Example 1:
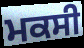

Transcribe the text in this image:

ਮਕਸੀ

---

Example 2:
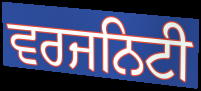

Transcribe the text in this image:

ਵਰਜਨਿਟੀ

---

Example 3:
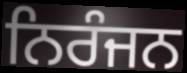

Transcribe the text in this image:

ਨਿਰੰਜਨ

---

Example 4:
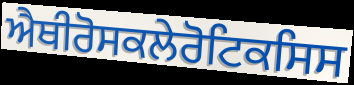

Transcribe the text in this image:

ਐਥੀਰੋਸਕਲੇਰੋਟਿਕਸਿਸ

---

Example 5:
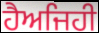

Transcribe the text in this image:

ਹੈਅਜਿਹੀ